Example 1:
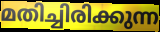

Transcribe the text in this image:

മതിച്ചിരിക്കുന്ന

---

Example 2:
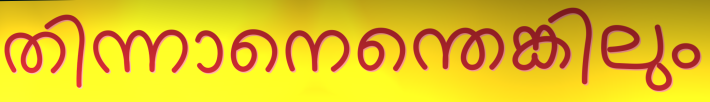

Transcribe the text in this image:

തിന്നാനെന്തെങ്കിലും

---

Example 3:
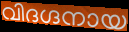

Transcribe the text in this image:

വിദഗ്ദനായ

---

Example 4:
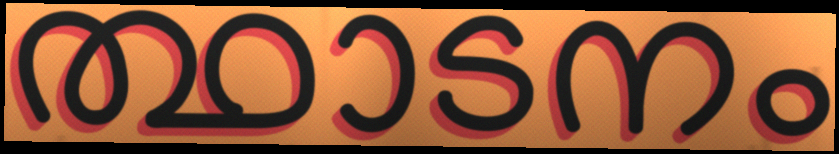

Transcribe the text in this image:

ത്ഥാടനം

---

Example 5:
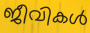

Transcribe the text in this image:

ജീവികൾ